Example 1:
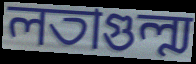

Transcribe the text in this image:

লতাগুল্ম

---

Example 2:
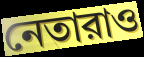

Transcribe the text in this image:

নেতারাও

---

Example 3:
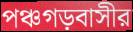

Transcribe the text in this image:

পঞ্চগড়বাসীর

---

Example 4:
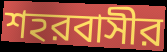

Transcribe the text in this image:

শহরবাসীর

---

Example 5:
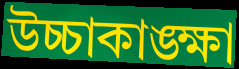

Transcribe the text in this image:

উচ্চাকাঙ্ক্ষা